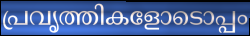
പ്രവൃത്തികളോടൊപ്പം